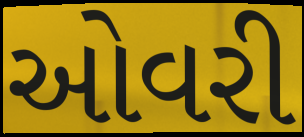
ઓવરી